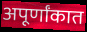
अपूर्णांकात